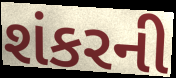
શંકરની